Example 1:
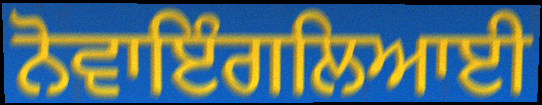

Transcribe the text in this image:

ਨੋਵਾਇੰਗਲਿਆਈ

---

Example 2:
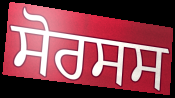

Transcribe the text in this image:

ਸੋਰਸਸ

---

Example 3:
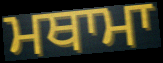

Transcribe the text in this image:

ਮਥਾਮਾ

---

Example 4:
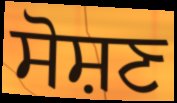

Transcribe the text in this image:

ਸੋਸ਼ਣ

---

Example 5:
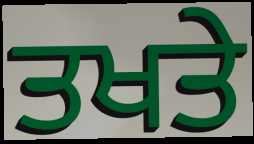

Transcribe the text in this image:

ਤਖਤੇ